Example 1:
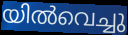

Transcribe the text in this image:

യിൽവെച്ചു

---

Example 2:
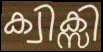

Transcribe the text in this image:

ക്വിക്സി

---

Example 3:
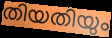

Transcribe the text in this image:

തിയതിയും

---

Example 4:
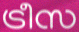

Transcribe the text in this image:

ട്രീസ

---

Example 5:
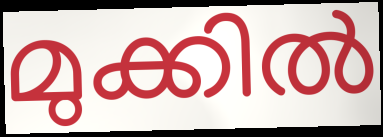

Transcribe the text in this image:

മുക്കിൽ